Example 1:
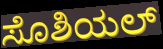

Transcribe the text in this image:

ಸೊಶಿಯಲ್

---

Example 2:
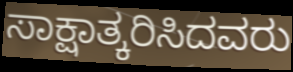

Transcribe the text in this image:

ಸಾಕ್ಷಾತ್ಕರಿಸಿದವರು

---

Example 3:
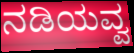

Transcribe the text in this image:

ನಡಿಯವ್ವ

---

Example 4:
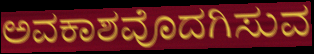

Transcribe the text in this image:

ಅವಕಾಶವೊದಗಿಸುವ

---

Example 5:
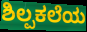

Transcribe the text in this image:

ಶಿಲ್ಪಕಲೆಯ